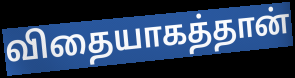
விதையாகத்தான்